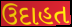
ઉદાહત